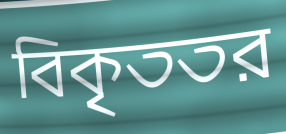
বিকৃততর